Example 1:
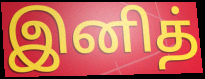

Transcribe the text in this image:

இனித்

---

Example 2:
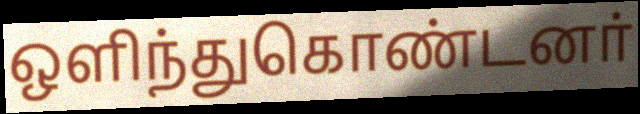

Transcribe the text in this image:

ஒளிந்துகொண்டனர்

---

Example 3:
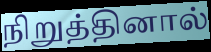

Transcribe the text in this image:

நிறுத்தினால்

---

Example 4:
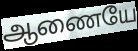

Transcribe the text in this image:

ஆணையே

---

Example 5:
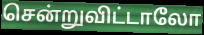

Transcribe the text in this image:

சென்றுவிட்டாலோ